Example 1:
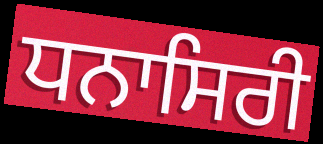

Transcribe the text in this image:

ਧਨਾਸਿਰੀ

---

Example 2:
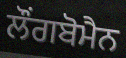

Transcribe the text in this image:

ਲੌਂਗਬੋਮੈਨ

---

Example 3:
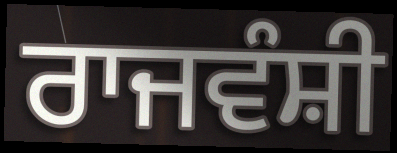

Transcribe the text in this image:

ਰਾਜਵੰਸ਼ੀ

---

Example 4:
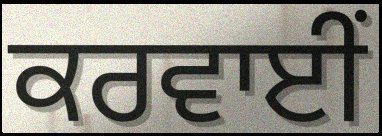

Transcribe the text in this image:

ਕਰਵਾਈਂ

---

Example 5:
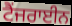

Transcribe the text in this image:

ਟੈਂਜਰਾਈਨ